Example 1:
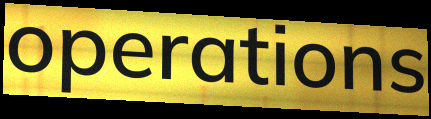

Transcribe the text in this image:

operations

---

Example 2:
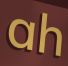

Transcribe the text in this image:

ah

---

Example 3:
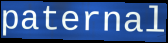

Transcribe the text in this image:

paternal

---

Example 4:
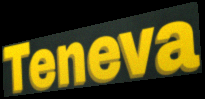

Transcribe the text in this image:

Teneva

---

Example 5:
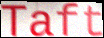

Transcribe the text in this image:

Taft